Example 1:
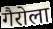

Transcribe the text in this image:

गैरोला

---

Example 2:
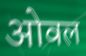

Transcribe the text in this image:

ओवल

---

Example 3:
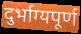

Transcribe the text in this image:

दुर्भाग्यपूर्ण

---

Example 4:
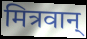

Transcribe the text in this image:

मित्रवान्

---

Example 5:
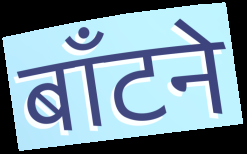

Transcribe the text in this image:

बाँटने